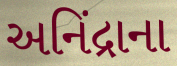
અનિંદ્રાના